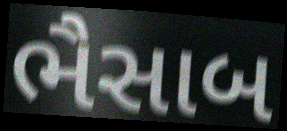
ભૈસાબ